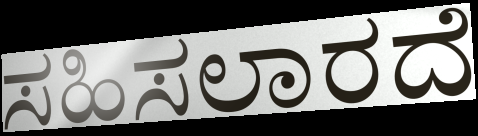
ಸಹಿಸಲಾರದೆ